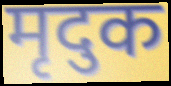
मृदुक